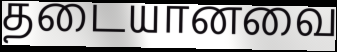
தடையானவை